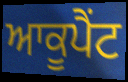
ਆਕੂਪੈਂਟ